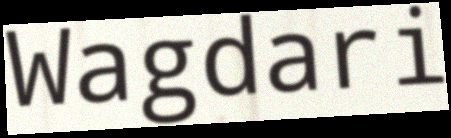
Wagdari